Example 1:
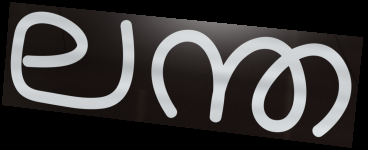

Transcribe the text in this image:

ലന്ത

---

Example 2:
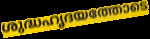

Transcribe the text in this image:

ശുദ്ധഹൃദയത്തോടെ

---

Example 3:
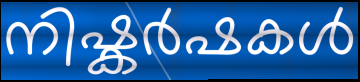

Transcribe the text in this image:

നിഷ്കർഷകൾ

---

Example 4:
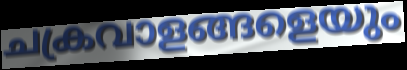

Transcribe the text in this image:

ചക്രവാളങ്ങളെയും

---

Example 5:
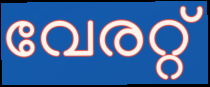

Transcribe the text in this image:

വേരറ്റ്